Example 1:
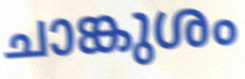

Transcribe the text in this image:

ചാങ്കുശം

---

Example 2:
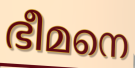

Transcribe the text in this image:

ഭീമനെ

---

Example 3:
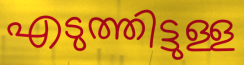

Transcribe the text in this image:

എടുത്തിട്ടുള്ള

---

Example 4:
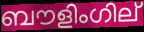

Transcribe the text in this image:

ബൗളിംഗില്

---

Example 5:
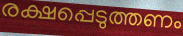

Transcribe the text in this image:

രക്ഷപ്പെടുത്തണം